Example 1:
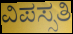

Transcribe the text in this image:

ವಿಪಸ್ಸತಿ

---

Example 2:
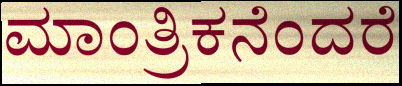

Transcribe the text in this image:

ಮಾಂತ್ರಿಕನೆಂದರೆ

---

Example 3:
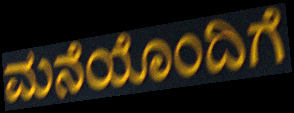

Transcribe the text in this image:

ಮನೆಯೊಂದಿಗೆ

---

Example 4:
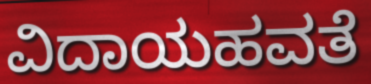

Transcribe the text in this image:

ವಿದಾಯಹವತೆ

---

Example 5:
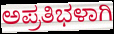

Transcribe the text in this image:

ಅಪ್ರತಿಭಳಾಗಿ